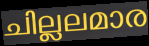
ചില്ലലമാര